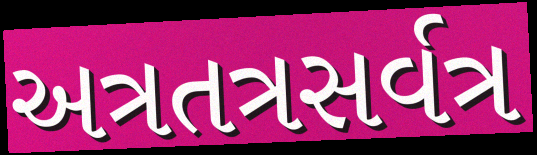
અત્રતત્રસર્વત્ર